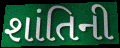
શાંતિની